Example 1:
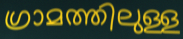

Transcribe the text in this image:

ഗ്രാമത്തിലുള്ള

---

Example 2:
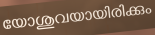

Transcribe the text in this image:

യോശുവയായിരിക്കും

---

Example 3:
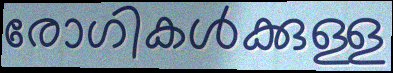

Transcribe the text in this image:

രോഗികൾക്കുള്ള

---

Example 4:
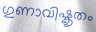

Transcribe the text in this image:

ഗുണാവിഷ്കൃതം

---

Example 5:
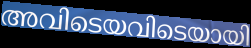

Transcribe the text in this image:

അവിടെയവിടെയായി